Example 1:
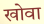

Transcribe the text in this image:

खोवा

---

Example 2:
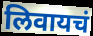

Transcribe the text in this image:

लिवायचं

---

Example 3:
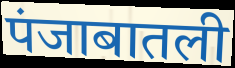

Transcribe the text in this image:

पंजाबातली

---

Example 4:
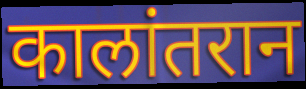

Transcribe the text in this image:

कालांतरान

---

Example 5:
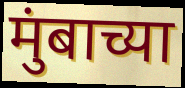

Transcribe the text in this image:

मुंबाच्या